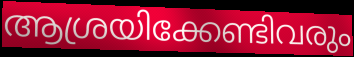
ആശ്രയിക്കേണ്ടിവരും